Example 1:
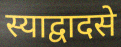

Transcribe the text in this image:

स्याद्वादसे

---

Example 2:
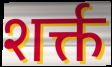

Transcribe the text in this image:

शर्क्त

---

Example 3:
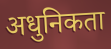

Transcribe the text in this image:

अधुनिकता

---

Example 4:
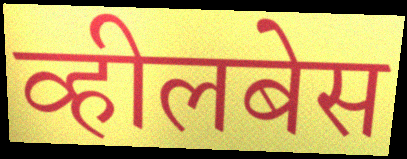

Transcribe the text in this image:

व्हीलबेस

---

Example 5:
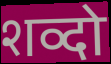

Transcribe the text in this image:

शव्दो